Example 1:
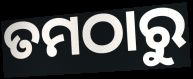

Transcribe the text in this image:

ତମଠାରୁ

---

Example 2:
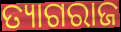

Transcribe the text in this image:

ତ୍ୟାଗରାଜ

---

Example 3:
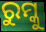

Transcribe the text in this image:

ରୁମ୍କୁ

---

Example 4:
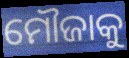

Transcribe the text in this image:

ମୌଜାକୁ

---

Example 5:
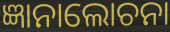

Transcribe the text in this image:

ଜ୍ଞାନାଲୋଚନା